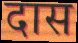
दास